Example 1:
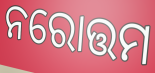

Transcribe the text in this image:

ନରୋତ୍ତମ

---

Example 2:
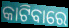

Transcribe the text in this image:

କାଟିବାରେ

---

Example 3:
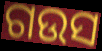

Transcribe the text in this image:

ଗଉସ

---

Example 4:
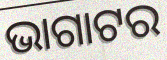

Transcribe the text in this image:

ଭାଗାଟର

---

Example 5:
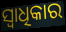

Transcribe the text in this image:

ସ୍ବାଧିକାର